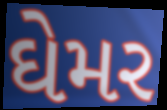
ઘેમર